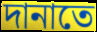
দানাতে